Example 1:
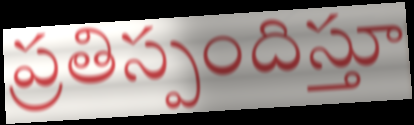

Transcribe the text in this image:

ప్రతిస్పందిస్తూ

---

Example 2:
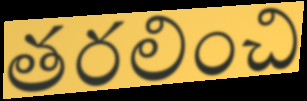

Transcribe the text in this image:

తరలించి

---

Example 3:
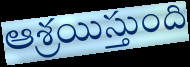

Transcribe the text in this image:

ఆశ్రయిస్తుంది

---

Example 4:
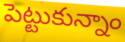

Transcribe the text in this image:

పెట్టుకున్నాం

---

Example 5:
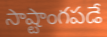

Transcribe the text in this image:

సాష్టాంగపడే